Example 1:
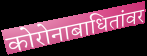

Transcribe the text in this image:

कोरोनाबाधितांवर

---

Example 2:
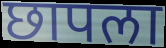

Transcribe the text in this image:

छापला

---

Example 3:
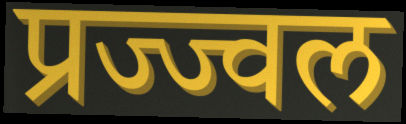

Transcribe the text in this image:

प्रज्ज्वल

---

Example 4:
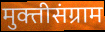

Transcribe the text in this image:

मुक्तीसंग्राम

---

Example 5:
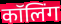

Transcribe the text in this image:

कॉलिंग